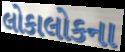
લોકાલોકના